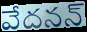
వేదనన్